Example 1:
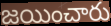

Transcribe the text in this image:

జయించారు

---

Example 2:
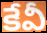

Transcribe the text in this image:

కేవీ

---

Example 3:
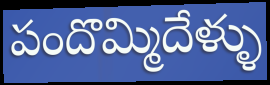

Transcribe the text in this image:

పందొమ్మిదేళ్ళు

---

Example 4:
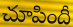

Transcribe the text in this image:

చూపిందీ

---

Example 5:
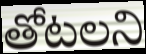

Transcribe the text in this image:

తోటలని